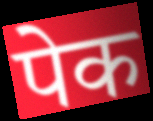
पेक